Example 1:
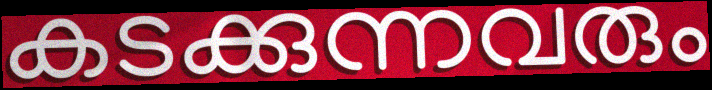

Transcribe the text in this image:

കടക്കുന്നവരും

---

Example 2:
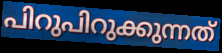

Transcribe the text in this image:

പിറുപിറുക്കുന്നത്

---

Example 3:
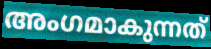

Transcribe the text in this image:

അംഗമാകുന്നത്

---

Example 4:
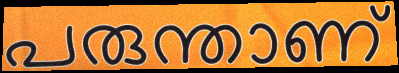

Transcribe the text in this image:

പരുന്താണ്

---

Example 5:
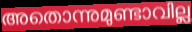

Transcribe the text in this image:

അതൊന്നുമുണ്ടാവില്ല